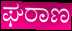
ಘರಾಣ